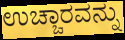
ಉಚ್ಚಾರವನ್ನು